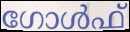
ഗോൾഫ്